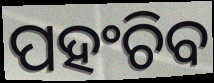
ପହଂଚିବ